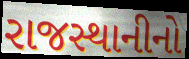
રાજસ્થાનીનો